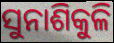
ସୁନାଶିକୁଳି